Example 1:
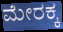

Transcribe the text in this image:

ಮೇರಕ್ಕ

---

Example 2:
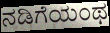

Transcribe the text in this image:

ನಡಿಗೆಯಂಥ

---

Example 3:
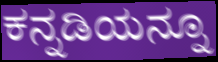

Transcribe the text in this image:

ಕನ್ನಡಿಯನ್ನೂ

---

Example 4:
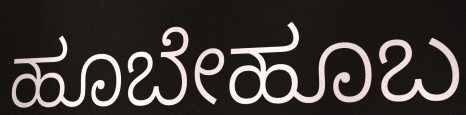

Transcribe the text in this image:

ಹೂಬೇಹೂಬ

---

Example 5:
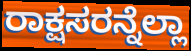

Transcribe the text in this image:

ರಾಕ್ಷಸರನ್ನೆಲ್ಲಾ